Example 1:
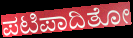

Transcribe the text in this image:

ಪಟಿಪಾದಿತೋ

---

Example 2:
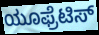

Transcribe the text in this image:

ಯೂಫ್ರೆಟಿಸ್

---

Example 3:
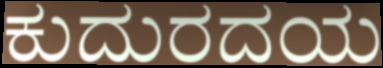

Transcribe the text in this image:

ಕುದುರದಯ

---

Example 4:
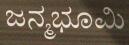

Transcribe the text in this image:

ಜನ್ಮಭೂಮಿ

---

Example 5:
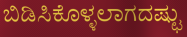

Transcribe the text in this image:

ಬಿಡಿಸಿಕೊಳ್ಳಲಾಗದಷ್ಟು